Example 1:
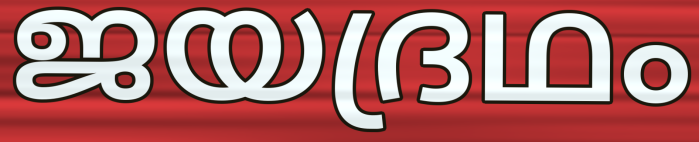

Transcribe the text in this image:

ജയദ്രഥം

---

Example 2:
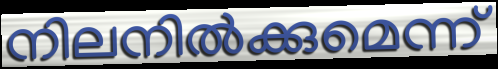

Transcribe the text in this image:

നിലനിൽക്കുമെന്ന്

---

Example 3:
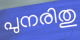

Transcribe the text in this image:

പുനരിതു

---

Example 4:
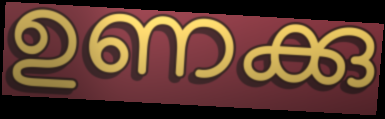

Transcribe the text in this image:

ഉണക്കു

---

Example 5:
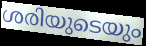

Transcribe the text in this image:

ശരിയുടെയും